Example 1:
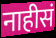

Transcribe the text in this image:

नाहीसं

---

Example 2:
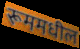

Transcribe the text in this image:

रूममधील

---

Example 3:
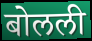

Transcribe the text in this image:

बोलली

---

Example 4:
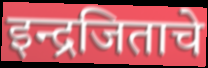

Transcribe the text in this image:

इन्द्रजिताचे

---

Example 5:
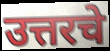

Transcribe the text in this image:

उत्तरचे